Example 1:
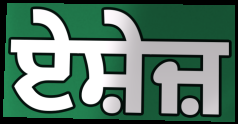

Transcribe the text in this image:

ਏਸ਼ੇਜ਼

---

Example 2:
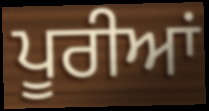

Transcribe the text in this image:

ਪੂਰੀਆਂ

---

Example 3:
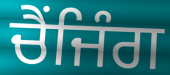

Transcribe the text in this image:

ਚੈਂਜਿੰਗ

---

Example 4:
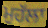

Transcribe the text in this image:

ਮੁਹੱਲਾ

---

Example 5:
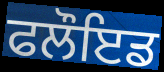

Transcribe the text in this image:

ਫਲੌਇਡ